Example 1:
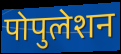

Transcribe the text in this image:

पोपुलेशन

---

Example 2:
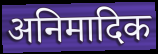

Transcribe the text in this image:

अनिमादिक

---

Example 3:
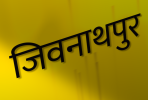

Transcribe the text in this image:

जिवनाथपुर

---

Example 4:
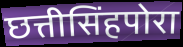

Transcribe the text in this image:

छत्तीसिंहपोरा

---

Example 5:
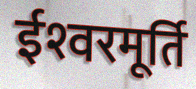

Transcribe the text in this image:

ईश्वरमूर्ति